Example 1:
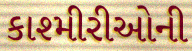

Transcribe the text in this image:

કાશ્મીરીઓની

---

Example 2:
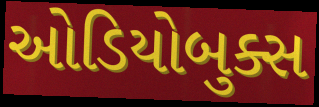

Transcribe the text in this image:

ઓડિયોબુક્સ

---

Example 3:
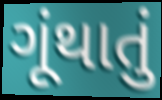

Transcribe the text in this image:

ગૂંથાતું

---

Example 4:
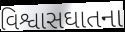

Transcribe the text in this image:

વિશ્વાસઘાતના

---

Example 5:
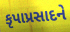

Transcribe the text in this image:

કૃપાપ્રસાદને